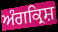
ਅੰਗਕ੍ਰਿਸ਼